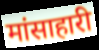
मांसाहारी